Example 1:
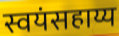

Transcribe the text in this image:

स्वयंसहाय्य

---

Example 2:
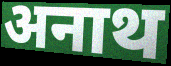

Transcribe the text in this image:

अनाथ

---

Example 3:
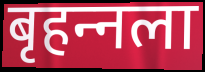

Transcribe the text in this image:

बृहन्नला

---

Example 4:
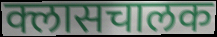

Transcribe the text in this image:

क्‍लासचालक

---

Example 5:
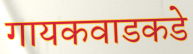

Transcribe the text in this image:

गायकवाडकडे